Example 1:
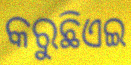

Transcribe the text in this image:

କରୁଛିଏଇ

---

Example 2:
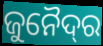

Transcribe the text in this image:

ଜୁନୈଦ୍‌ର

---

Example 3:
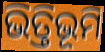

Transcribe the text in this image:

ଭିତ୍ତିଭୂମି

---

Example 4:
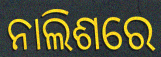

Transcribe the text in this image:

ନାଲିଶରେ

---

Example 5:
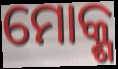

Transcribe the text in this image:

ମୋକ୍ଶ